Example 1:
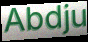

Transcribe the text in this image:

Abdju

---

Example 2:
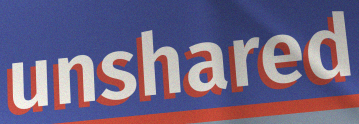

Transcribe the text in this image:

unshared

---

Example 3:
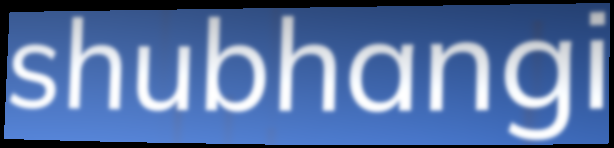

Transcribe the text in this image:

shubhangi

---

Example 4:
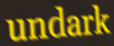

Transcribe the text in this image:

undark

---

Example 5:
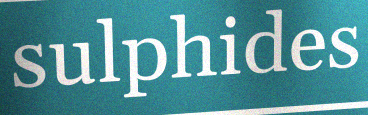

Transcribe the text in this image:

sulphides